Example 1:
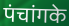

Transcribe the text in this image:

पंचांगके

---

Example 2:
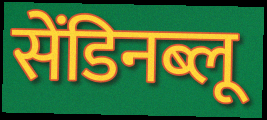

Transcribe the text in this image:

सेंडिनब्लू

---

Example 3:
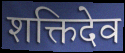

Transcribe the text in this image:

शक्तिदेव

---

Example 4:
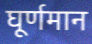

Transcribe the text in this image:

घूर्णमान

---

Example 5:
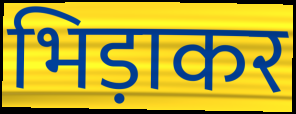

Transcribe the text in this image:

भिड़ाकर